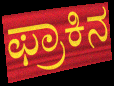
ಫ್ರಾಕಿನ